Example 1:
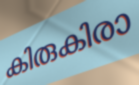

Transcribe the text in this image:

കിരുകിരാ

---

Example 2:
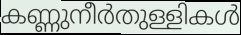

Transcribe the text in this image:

കണ്ണുനീർതുള്ളികൾ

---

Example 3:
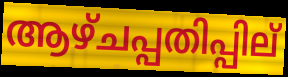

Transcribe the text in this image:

ആഴ്ചപ്പതിപ്പില്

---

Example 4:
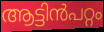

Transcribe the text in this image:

ആട്ടിൻപറ്റം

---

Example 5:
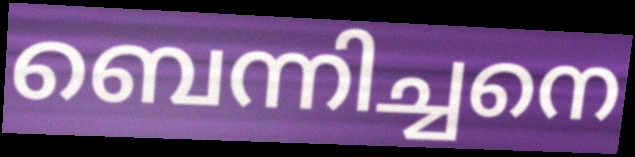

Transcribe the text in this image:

ബെന്നിച്ചനെ